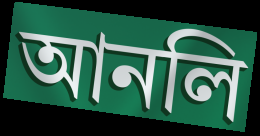
আনলি